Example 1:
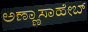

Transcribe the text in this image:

ಅಣ್ಣಾಸಾಹೇಬ್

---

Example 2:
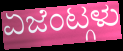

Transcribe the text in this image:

ಏಜೆಂಟ್ಗಳು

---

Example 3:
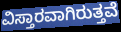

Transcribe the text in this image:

ವಿಸ್ತಾರವಾಗಿರುತ್ತವೆ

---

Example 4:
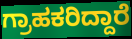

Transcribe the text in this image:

ಗ್ರಾಹಕರಿದ್ದಾರೆ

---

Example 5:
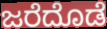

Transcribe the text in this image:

ಜರೆದೊಡೆ